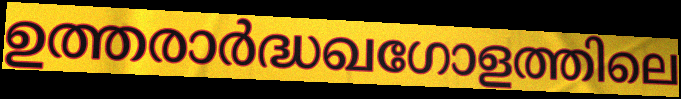
ഉത്തരാർദ്ധഖഗോളത്തിലെ